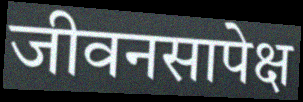
जीवनसापेक्ष